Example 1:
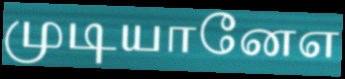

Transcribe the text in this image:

முடியானேஎ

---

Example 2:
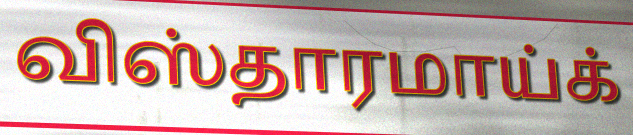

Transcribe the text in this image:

விஸ்தாரமாய்க்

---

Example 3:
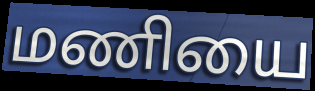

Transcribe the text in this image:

மணியை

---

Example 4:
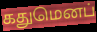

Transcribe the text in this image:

கதுமெனப்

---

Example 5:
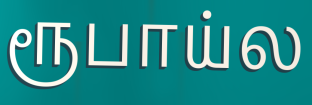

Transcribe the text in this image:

ரூபாய்ல